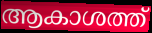
ആകാശത്ത്